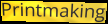
Printmaking